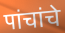
पांचांचे